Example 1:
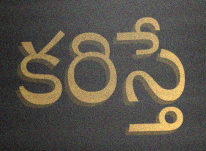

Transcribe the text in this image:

కరిస్తే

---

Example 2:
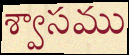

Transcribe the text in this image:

శ్వాసము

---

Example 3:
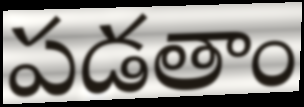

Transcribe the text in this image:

పడతాం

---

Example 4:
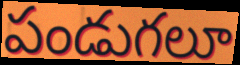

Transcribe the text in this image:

పండుగలూ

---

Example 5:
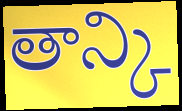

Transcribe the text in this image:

తాన్కి